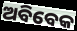
ଅବିବେକ